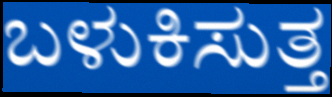
ಬಳುಕಿಸುತ್ತ